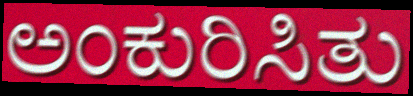
ಅಂಕುರಿಸಿತು